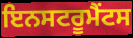
ਇਨਸਟਰੂਮੈਂਟਸ